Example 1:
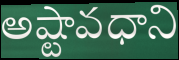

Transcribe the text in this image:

అష్టావధాని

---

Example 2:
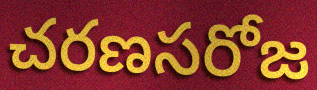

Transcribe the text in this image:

చరణసరోజ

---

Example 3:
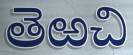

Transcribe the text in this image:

తెఱచి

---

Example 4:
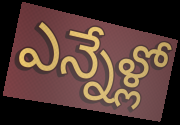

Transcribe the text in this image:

ఎన్నేళ్లో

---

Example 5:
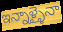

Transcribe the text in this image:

ఇన్నాళ్ళైనా